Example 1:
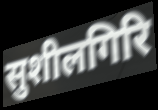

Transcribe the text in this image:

सुशीलगिरि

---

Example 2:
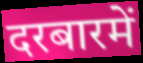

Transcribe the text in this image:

दरबारमें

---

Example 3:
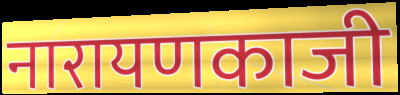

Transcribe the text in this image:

नारायणकाजी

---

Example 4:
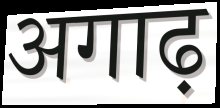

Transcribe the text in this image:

अगाढ़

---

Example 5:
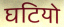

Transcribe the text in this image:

घटियो